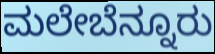
ಮಲೇಬೆನ್ನೂರು